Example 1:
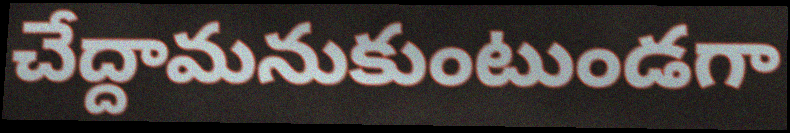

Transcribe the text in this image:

చేద్దామనుకుంటుండగా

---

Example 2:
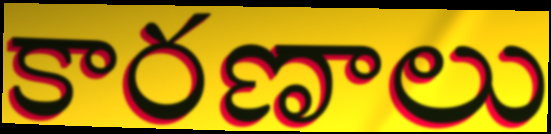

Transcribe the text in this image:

కారణాలు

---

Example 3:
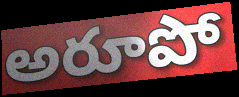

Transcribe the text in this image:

అరూపో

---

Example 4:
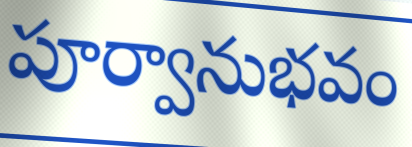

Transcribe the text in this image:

పూర్వానుభవం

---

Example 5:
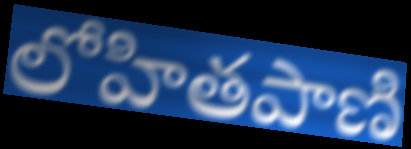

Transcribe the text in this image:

లోహితపాణి